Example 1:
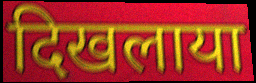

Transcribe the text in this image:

दिखलाया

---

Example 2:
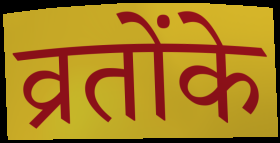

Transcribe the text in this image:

व्रतोंके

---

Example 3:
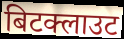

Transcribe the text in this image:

बिटक्लाउट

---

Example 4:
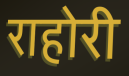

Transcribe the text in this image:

राहोरी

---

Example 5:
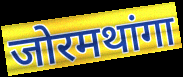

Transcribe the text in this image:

जोरमथांगा